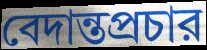
বেদান্তপ্রচার